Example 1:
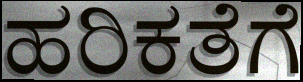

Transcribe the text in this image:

ಹರಿಕತೆಗೆ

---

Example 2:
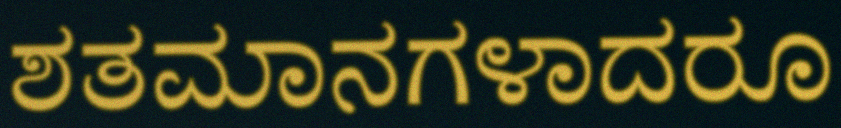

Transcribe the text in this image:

ಶತಮಾನಗಳಾದರೂ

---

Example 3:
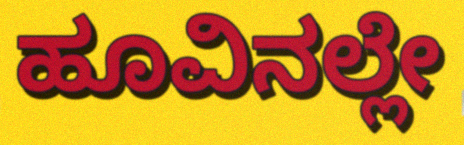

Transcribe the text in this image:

ಹೂವಿನಲ್ಲೇ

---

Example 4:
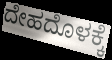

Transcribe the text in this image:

ದೇಹದೊಳಕ್ಕೆ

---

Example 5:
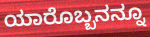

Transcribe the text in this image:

ಯಾರೊಬ್ಬನನ್ನೂ